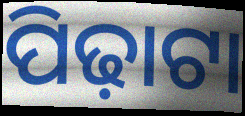
ପିଢ଼ାଟା